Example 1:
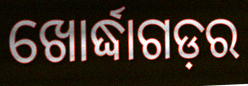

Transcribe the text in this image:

ଖୋର୍ଦ୍ଧାଗଡ଼ର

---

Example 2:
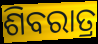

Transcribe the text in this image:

ଶିବରାତ୍ର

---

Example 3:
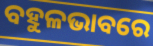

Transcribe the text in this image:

ବହୁଳଭାବରେ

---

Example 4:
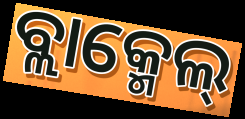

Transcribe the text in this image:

ବ୍ଲାକ୍ମେଲ୍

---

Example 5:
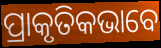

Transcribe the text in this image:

ପ୍ରାକୃତିକଭାବେ